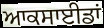
ਆਕਸਾਈਡਾਂ